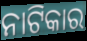
ନାଟିକାର